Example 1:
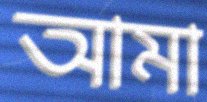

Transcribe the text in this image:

আমা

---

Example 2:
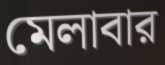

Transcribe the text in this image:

মেলাবার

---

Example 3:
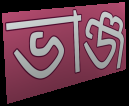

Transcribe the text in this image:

ভাঞ্জ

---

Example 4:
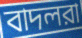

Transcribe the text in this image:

বাদলরা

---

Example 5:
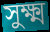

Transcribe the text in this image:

সুক্ষ্ম